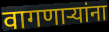
वागणार्‍यांना